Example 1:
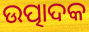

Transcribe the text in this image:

ଉତ୍ପାଦକ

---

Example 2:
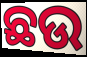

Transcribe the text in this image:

ଛଉ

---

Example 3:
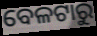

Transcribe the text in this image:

ବେଳଟାରୁ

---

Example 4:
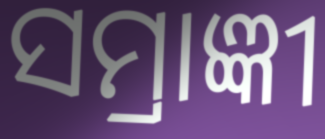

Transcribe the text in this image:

ସମ୍ରାଜ୍ଞୀ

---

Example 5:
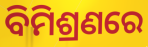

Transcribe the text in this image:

ବିମିଶ୍ରଣରେ